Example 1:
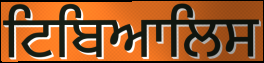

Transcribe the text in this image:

ਟਿਬਿਆਲਿਸ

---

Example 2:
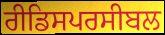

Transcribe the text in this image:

ਰੀਡਿਸਪਰਸੀਬਲ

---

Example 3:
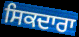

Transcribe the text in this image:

ਸਿਕਦਾਰਾ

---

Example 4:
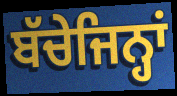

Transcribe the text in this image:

ਬੱਚੇਜਿਨ੍ਹਾਂ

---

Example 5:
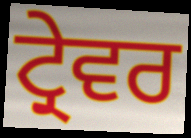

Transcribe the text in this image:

ਟ੍ਰੇਵਰ